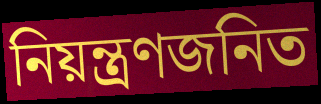
নিয়ন্ত্রণজনিত